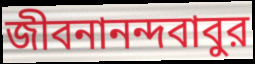
জীবনানন্দবাবুর